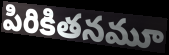
పిరికితనమూ